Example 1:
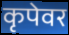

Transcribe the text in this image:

कृपेवर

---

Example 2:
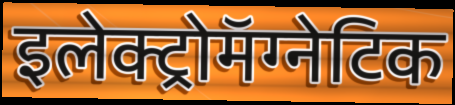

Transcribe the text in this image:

इलेक्ट्रोमॅग्नेटिक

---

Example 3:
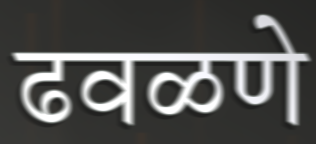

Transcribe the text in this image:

ढवळणे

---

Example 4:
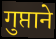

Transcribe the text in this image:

गुप्ताने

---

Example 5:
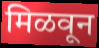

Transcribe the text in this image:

मिळवून